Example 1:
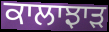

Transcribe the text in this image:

ਕਾਲਾਝਾਡ਼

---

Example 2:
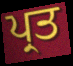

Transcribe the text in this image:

ਪ੍ਰਤ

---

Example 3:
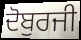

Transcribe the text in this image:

ਦੋਬੁਰਜੀ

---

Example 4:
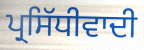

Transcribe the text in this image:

ਪ੍ਰਸਿੱਧੀਵਾਦੀ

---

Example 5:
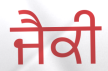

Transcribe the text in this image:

ਜੈਕੀ